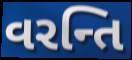
વરન્તિ